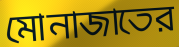
মোনাজাতের